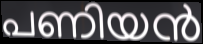
പണിയൻ